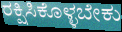
ರಕ್ಷಿಸಿಕೊಳ್ಳಬೇಕು